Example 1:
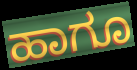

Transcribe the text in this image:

ಹಾಗೂ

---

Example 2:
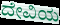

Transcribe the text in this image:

ದೇವಿಯ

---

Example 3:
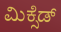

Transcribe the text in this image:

ಮಿಕ್ಸೆಡ್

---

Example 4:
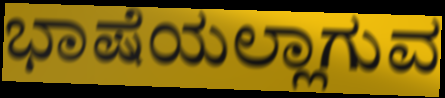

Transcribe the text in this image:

ಭಾಷೆಯಲ್ಲಾಗುವ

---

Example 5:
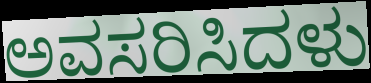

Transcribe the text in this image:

ಅವಸರಿಸಿದಳು